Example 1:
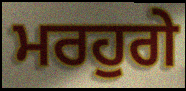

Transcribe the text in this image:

ਮਰਹੁਗੇ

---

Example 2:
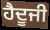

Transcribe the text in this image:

ਹੈਦੂਜੀ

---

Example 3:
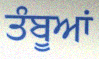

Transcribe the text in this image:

ਤੰਬੂਆਂ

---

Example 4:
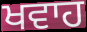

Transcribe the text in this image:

ਖਵਾਹ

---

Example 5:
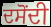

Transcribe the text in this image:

ਦਸੋਂਦੀ